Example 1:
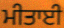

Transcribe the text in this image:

ਮੀਤਾਈ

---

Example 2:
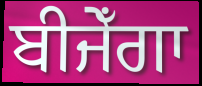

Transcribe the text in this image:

ਬੀਜੇਁਗਾ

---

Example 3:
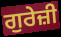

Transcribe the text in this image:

ਗੁਰੇਜ਼ੀ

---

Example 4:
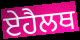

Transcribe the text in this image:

ਏਹੈਲਥ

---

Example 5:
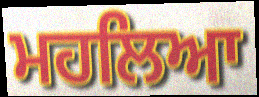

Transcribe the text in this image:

ਮਹਲਿਆ